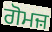
ਗੋਮਜ਼